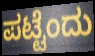
ಪಟ್ಟೆಂದು